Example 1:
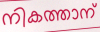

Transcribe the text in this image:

നികത്താന്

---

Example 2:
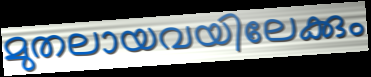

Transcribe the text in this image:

മുതലായവയിലേക്കും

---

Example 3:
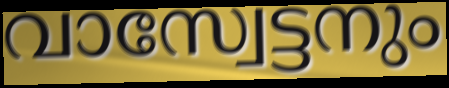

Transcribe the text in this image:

വാസ്വേട്ടനും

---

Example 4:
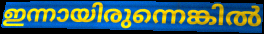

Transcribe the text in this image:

ഇന്നായിരുന്നെങ്കിൽ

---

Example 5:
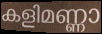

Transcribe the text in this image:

കളിമണ്ണാ